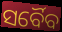
ସର୍ବୈବ